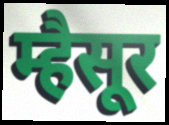
म्हैसूर